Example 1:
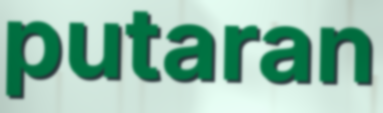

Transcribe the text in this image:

putaran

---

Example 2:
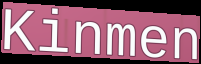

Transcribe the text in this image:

Kinmen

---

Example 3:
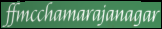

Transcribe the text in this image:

ffmcchamarajanagar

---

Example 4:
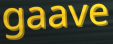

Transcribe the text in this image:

gaave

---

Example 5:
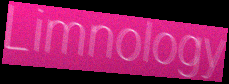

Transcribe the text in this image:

Limnology